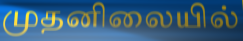
முதனிலையில்